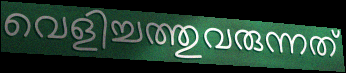
വെളിച്ചത്തുവരുന്നത്